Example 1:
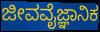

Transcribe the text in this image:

ಜೀವವೈಜ್ಞಾನಿಕ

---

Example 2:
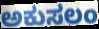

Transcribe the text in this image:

ಅಕುಸಲಂ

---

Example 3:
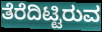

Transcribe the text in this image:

ತೆರೆದಿಟ್ಟಿರುವ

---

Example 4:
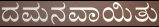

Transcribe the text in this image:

ದಮನವಾಯಿತು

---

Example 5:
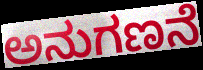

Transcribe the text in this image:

ಅನುಗಣನೆ